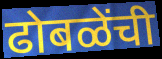
ढोबळेंची